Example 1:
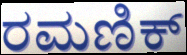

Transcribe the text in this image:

ರಮಣಿಕ್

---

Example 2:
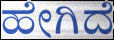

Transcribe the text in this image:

ಹೇಗಿದೆ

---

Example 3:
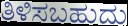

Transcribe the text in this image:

ತಿಳಿಸಬಹುದು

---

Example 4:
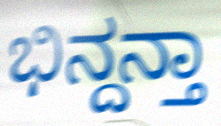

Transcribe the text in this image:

ಭಿನ್ದನ್ತಾ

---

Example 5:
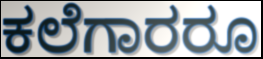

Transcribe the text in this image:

ಕಲೆಗಾರರೂ